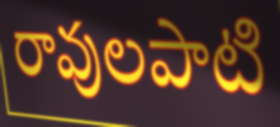
రావులపాటి